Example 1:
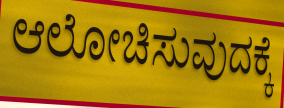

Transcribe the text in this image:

ಆಲೋಚಿಸುವುದಕ್ಕೆ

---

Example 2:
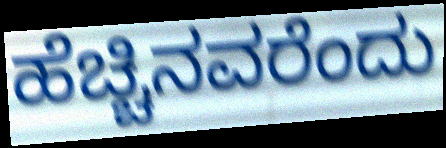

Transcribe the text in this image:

ಹೆಚ್ಚಿನವರೆಂದು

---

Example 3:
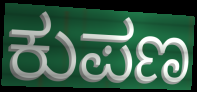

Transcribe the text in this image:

ಕುಪಣ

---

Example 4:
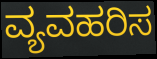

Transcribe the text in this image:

ವ್ಯವಹರಿಸ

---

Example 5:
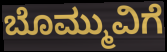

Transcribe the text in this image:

ಬೊಮ್ಮುವಿಗೆ